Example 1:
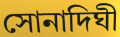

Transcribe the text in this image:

সোনাদিঘী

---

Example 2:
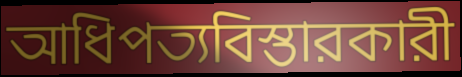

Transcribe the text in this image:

আধিপত্যবিস্তারকারী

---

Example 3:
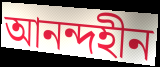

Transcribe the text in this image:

আনন্দহীন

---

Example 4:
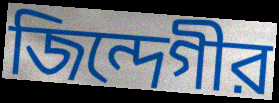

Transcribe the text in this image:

জিন্দেগীর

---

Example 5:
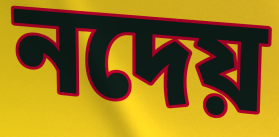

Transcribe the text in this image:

নদেয়